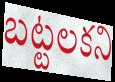
బట్టలకని